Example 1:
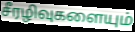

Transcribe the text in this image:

சீரழிவுகளையும்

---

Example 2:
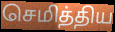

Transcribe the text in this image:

செமித்திய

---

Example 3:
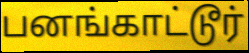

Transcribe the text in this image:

பனங்காட்டூர்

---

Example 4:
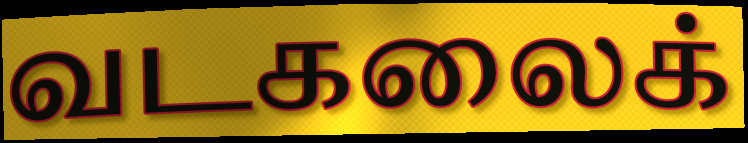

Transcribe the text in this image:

வடகலைக்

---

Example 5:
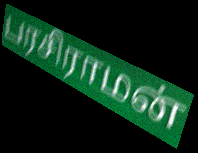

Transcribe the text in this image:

பரசிராமன்